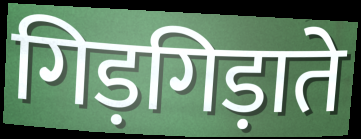
गिड़गिड़ाते